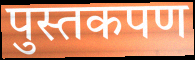
पुस्तकपण